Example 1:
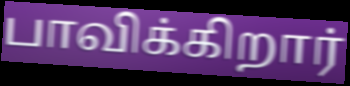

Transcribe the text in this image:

பாவிக்கிறார்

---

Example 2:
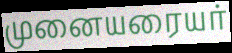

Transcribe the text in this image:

முனையரையர்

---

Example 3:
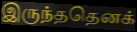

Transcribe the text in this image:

இருந்ததெனக்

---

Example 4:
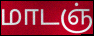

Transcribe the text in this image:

மாடஞ்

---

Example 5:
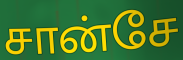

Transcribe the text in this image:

சான்சே